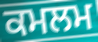
ਕਮਲਮ